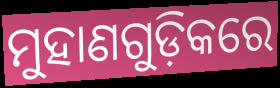
ମୁହାଣଗୁଡ଼ିକରେ